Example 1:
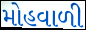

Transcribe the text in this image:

મોહવાળી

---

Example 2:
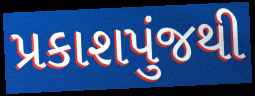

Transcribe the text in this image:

પ્રકાશપુંજથી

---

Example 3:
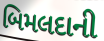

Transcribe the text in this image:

બિમલદાની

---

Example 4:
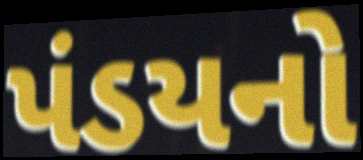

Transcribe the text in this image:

પંડયનો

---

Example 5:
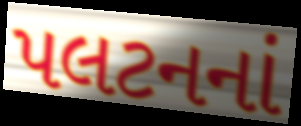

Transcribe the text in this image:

પલટનનાં